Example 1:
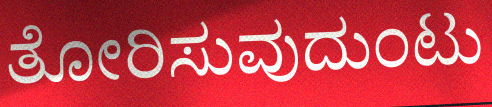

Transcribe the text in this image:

ತೋರಿಸುವುದುಂಟು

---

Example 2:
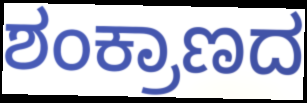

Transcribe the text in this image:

ಶಂಕ್ರಾಣದ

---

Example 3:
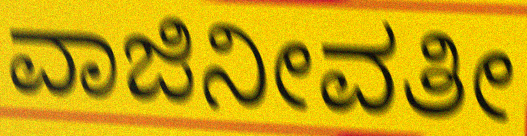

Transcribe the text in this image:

ವಾಜಿನೀವತೀ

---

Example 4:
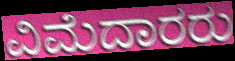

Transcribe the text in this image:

ವಿಮೆದಾರರು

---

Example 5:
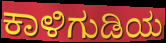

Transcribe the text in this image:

ಕಾಳಿಗುಡಿಯ